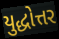
યુદ્ધોત્તર